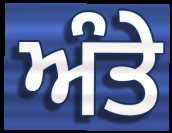
ਅੰਤੇ